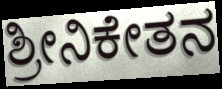
ಶ್ರೀನಿಕೇತನ